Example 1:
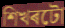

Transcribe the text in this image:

শিখৰটো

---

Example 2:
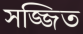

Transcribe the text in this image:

সজ্জিত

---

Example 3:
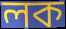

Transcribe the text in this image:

লক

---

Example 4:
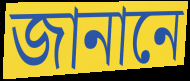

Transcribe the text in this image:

জানানে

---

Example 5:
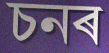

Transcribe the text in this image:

চনৰ